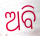
ଅବି